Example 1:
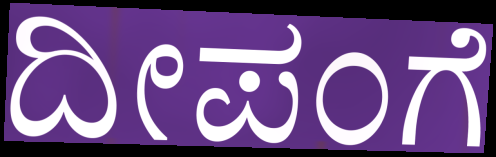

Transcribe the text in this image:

ದೀಪಂಗೆ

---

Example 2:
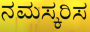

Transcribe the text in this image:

ನಮಸ್ಕರಿಸ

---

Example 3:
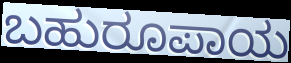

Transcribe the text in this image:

ಬಹುರೂಪಾಯ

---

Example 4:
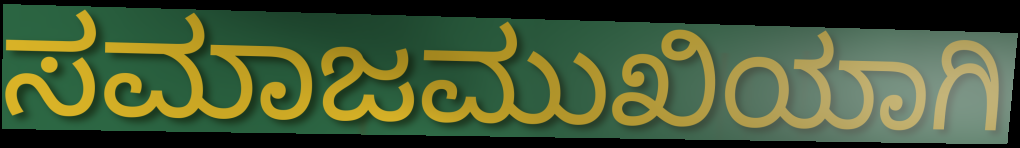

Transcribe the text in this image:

ಸಮಾಜಮುಖಿಯಾಗಿ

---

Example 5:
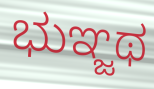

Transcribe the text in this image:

ಭುಞ್ಜಥ